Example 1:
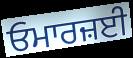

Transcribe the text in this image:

ਓਮਾਰਜ਼ਈ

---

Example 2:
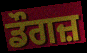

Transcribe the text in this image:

ਡੌਗਜ਼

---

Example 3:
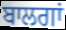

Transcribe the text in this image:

ਬਾਲਗਾਂ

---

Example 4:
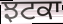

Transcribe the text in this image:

ਝਟਕਾ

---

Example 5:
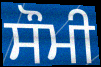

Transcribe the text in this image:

ਸੌਮੀ